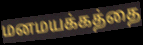
மனமயக்கத்தை